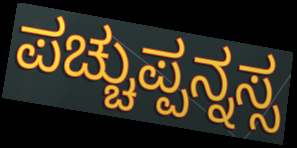
ಪಚ್ಚುಪ್ಪನ್ನಸ್ಸ